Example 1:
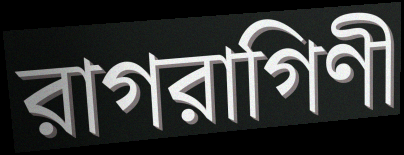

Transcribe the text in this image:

রাগরাগিণী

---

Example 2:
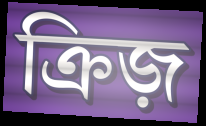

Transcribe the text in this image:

ক্রিজ়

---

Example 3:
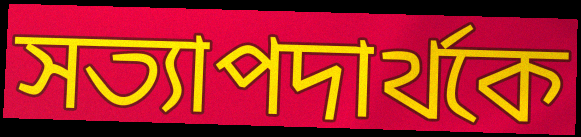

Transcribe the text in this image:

সত্যাপদার্থকে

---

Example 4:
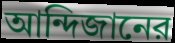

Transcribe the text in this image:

আন্দিজানের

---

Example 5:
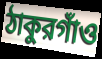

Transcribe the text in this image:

ঠাকুরগাঁও